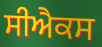
ਸੀਐਕਸ